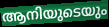
ആനിയുടെയും